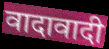
वादावादी